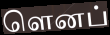
ளெனப்